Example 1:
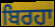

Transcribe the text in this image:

ਬਿਰਹਾ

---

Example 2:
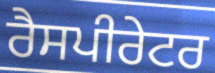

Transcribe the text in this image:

ਰੈਸਪੀਰੇਟਰ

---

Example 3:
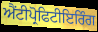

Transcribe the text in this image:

ਐਂਟੀਪ੍ਰੋਫਿਟੀਇਰਿੰਗ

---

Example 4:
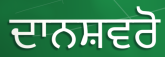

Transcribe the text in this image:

ਦਾਨਸ਼ਵਰੋ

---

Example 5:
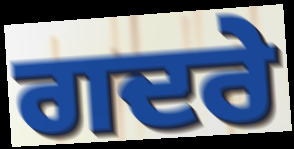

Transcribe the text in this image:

ਗਦਰੇ